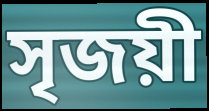
সৃজয়ী